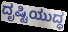
ದೃಷ್ಟಿಯುದ್ಧ